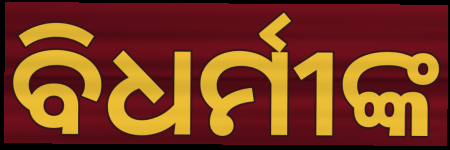
ବିଧର୍ମୀଙ୍କ